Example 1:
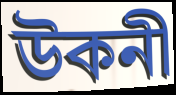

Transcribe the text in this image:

উকনী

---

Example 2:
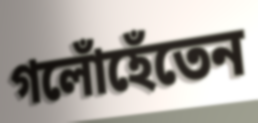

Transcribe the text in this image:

গলোঁহেঁতেন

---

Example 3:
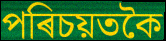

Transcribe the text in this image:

পৰিচয়তকৈ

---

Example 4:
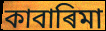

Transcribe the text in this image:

কাবাৰিমা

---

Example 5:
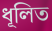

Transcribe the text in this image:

ধূলিত